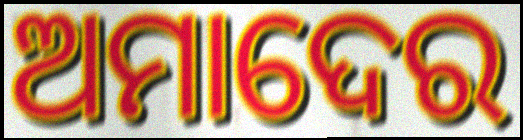
ଅମାଦେର